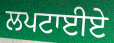
ਲਪਟਾਈਏ